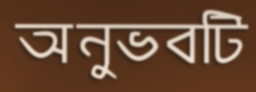
অনুভবটি